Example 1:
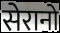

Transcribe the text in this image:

सेरानो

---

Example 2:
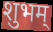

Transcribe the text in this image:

शुभम्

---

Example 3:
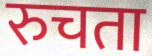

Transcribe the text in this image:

रुचता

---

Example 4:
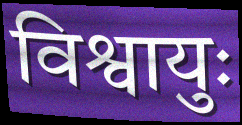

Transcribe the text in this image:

विश्वायुः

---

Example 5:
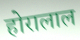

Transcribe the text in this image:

होरालाल